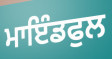
ਮਾਇੰਡਫੁਲ